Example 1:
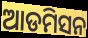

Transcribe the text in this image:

ଆଡମିସନ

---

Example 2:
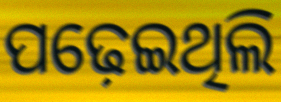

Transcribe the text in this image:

ପଢ଼େଇଥିଲି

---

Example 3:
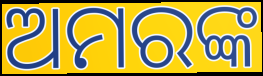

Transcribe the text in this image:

ଅମରଙ୍କ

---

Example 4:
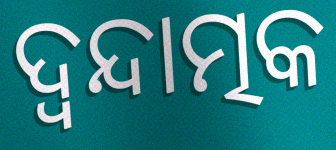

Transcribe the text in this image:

ଦ୍ୱନ୍ଦାତ୍ମକ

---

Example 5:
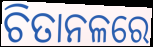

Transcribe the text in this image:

ଚିତାନଳରେ